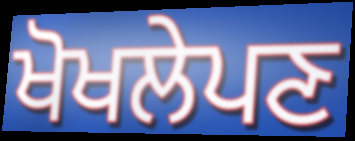
ਖੋਖਲੇਪਣ